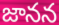
జానన